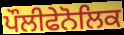
ਪੌਲੀਫੇਨੋਲਿਕ